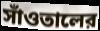
সাঁওতালের